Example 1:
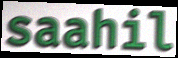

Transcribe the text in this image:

saahil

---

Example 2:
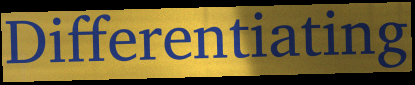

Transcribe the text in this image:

Differentiating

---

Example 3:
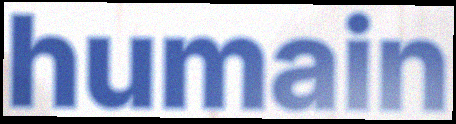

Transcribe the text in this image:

humain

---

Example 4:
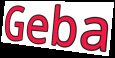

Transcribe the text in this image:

Geba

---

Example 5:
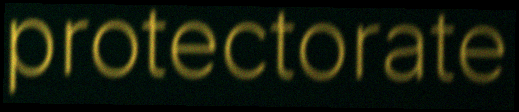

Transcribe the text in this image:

protectorate